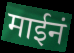
माईनं